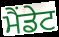
ਮੈਂਡੇਟ